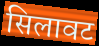
सिलावट